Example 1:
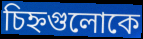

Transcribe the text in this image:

চিহ্নগুলোকে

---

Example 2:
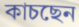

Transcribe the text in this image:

কাচছেন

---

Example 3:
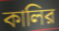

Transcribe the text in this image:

কালির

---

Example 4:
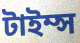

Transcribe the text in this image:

টাইম্স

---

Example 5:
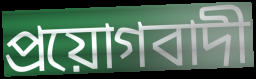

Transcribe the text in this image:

প্রয়োগবাদী